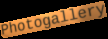
Photogallery